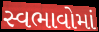
સ્વભાવોમાં